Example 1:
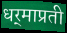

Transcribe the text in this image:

धर्माप्रती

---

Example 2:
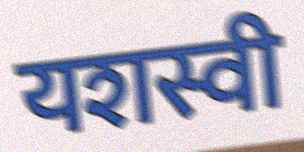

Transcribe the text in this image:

यशस्वी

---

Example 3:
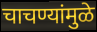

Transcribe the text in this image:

चाचण्यांमुळे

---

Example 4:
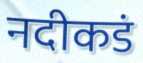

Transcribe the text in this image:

नदीकडं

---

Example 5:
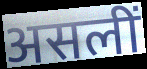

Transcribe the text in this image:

असलीं